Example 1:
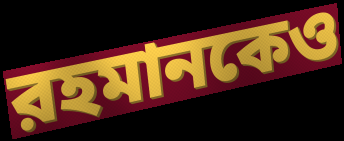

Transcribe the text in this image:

রহমানকেও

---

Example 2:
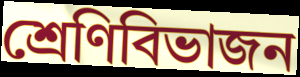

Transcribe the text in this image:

শ্রেণিবিভাজন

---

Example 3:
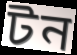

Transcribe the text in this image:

টন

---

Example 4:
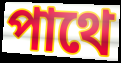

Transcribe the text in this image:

পাথে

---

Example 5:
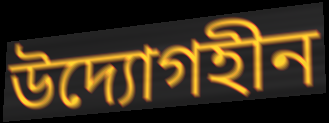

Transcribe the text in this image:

উদ্যোগহীন